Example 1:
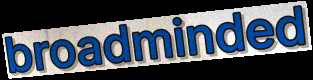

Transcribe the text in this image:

broadminded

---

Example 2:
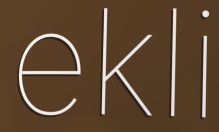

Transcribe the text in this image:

ekli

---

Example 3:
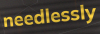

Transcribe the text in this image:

needlessly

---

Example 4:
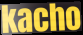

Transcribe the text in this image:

kacho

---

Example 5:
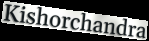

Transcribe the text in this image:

Kishorchandra